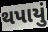
થપાયું